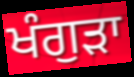
ਖੰਗੁੜਾ